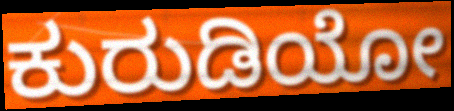
ಕುರುಡಿಯೋ